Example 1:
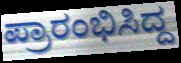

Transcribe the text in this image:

ಪ್ರಾರಂಭಿಸಿದ್ದ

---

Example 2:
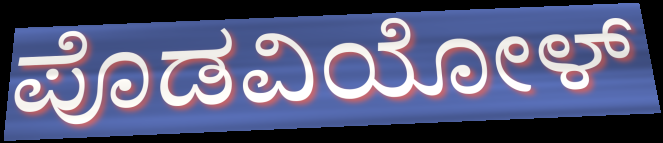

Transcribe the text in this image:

ಪೊಡವಿಯೋಳ್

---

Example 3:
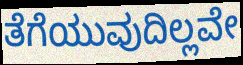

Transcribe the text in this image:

ತೆಗೆಯುವುದಿಲ್ಲವೇ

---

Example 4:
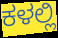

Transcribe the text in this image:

ಕಳಲ್ಲಿ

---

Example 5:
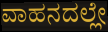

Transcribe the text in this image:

ವಾಹನದಲ್ಲೇ